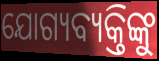
ଯୋଗ୍ୟବ୍ୟକ୍ତିଙ୍କୁ